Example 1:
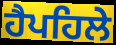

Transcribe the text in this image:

ਹੈਪਹਿਲੇ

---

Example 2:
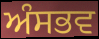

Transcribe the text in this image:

ਅੰਸਭਵ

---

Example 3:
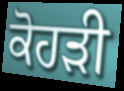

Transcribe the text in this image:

ਕੋਹੜੀ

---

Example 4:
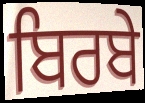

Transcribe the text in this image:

ਬਿਰਬੇ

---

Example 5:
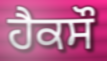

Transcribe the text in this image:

ਹੈਕਸੌ